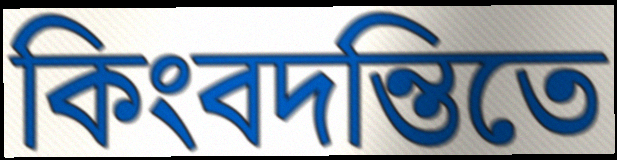
কিংবদন্তিতে